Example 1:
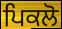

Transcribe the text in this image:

ਪਿਕਲੋ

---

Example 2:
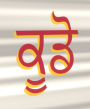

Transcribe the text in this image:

ਕੂਡੋ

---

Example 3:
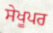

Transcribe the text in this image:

ਸੇਖੂਪਰ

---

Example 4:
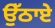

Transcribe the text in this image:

ਉੱਠਾਏ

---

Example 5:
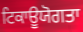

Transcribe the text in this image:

ਟਿਕਾਊਯੋਗਤਾ